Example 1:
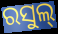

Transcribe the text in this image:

ରସୁଲ୍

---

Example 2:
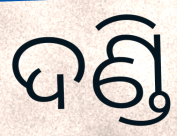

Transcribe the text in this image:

ଦଣ୍ଡି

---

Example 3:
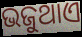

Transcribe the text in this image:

ଭଜୁଥାଏ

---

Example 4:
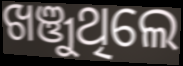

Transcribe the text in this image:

ଖଞ୍ଜୁଥିଲେ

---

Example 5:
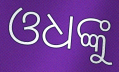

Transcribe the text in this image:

ଓଧଙ୍କୁ